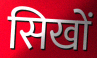
सिखों